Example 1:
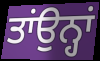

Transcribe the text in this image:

ਤਾਂਉਨ੍ਹਾਂ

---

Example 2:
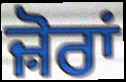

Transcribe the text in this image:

ਜ਼ੋਰਾਂ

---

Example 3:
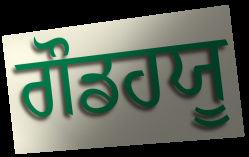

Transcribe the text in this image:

ਗੌਡਹਯੂ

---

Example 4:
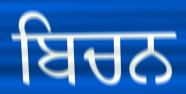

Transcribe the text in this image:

ਬਿਚਨ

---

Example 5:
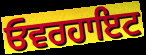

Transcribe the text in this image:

ਓਵਰਹਾਇਟ